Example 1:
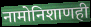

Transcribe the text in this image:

नामोनिशाणही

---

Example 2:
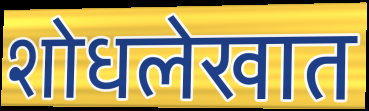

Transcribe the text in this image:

शोधलेखात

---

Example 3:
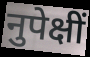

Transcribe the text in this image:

नुपेक्षीं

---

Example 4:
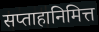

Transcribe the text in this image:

सप्ताहानिमित्त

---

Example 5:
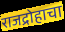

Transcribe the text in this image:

राजद्रोहाचा